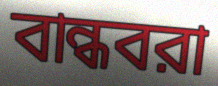
বান্ধবরা